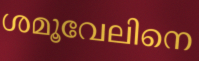
ശമൂവേലിനെ